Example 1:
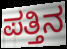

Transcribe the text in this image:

ಪತ್ತಿನ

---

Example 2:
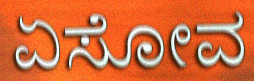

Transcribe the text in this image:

ಏಸೋವ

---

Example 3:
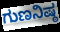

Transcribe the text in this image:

ಗುಣನಿಷ್ಠ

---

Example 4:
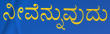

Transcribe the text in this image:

ನೀವೆನ್ನುವುದು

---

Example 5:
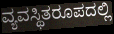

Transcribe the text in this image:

ವ್ಯವಸ್ಥಿತರೂಪದಲ್ಲಿ